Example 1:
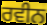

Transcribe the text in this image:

ਰਵੀਨ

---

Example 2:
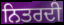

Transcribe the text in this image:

ਨਿਤਰਦੀ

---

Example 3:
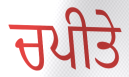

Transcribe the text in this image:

ਚਪੀਤੇ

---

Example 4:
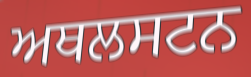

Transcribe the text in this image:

ਅਥਲਸਟਨ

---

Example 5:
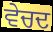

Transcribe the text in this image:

ਵੇਚਦ